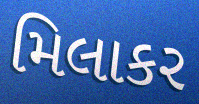
મિલાકર